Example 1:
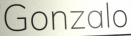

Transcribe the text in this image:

Gonzalo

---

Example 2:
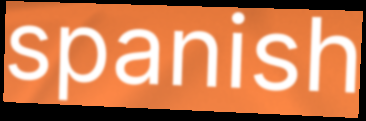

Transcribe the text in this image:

spanish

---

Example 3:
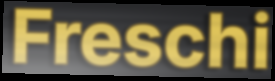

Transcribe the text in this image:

Freschi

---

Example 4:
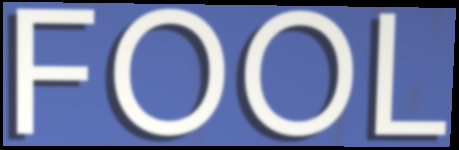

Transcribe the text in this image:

FOOL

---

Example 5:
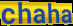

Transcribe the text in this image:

chaha